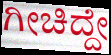
ಗೀಚಿದ್ದೇ